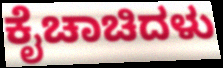
ಕೈಚಾಚಿದಳು